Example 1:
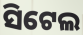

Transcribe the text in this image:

ସିଟେଲ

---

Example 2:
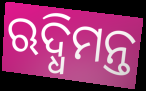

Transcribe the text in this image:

ଋଦ୍ଧିମନ୍ତ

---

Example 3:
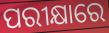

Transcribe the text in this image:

ପରୀକ୍ଷାରେ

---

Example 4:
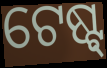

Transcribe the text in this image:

ଟେଷ୍ଟ୍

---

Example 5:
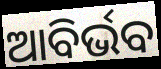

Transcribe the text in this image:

ଆବିର୍ଭବ